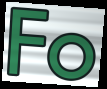
Fo